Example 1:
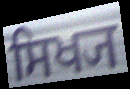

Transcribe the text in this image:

ਸਿਖ੍ਯ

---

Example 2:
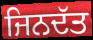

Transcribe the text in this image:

ਜਿਨਦੱਤ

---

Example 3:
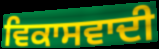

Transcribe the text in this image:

ਵਿਕਾਸਵਾਦੀ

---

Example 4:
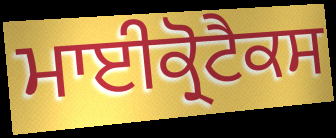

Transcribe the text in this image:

ਮਾਈਕ੍ਰੋਟੈਕਸ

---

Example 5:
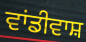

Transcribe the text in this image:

ਵਾਂਡੀਵਾਸ਼